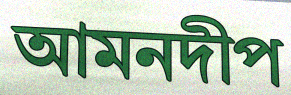
আমনদীপ